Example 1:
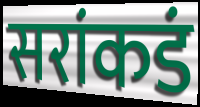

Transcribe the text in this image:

सरांकडं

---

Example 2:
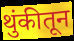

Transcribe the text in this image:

थुंकीतून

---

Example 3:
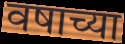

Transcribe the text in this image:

वषाच्या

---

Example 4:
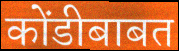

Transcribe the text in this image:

कोंडीबाबत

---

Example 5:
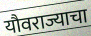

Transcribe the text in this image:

यौवराज्याचा